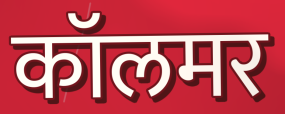
कॉलमर